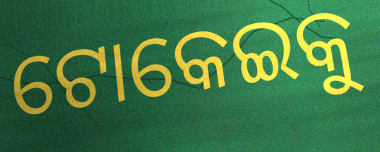
ଟୋକେଇକୁ